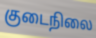
குடைநிலை